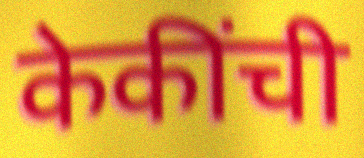
केकींची